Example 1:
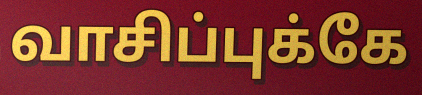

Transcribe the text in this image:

வாசிப்புக்கே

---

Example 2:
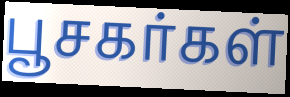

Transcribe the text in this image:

பூசகர்கள்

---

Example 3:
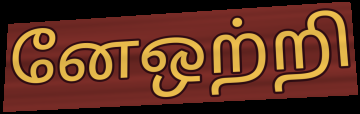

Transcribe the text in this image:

னேஒற்றி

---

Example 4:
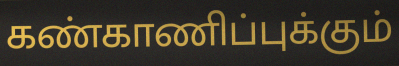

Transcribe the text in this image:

கண்காணிப்புக்கும்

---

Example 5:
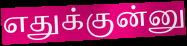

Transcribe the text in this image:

எதுக்குன்னு